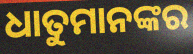
ଧାତୁମାନଙ୍କର